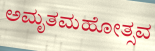
ಅಮೃತಮಹೋತ್ಸವ